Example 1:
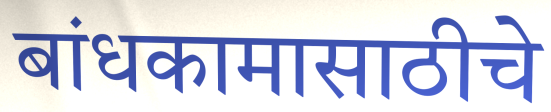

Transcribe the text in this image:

बांधकामासाठीचे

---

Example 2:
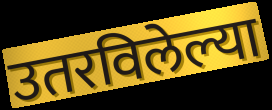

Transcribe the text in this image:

उतरविलेल्या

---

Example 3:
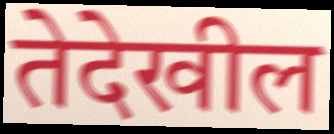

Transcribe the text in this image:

तेदेखील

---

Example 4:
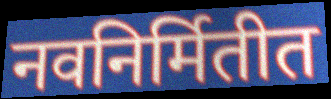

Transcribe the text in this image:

नवनिर्मितीत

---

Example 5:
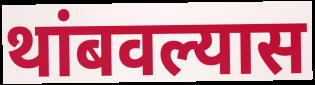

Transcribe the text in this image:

थांबवल्यास